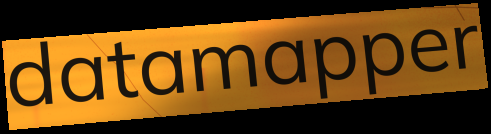
datamapper